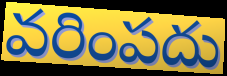
వరింపదు